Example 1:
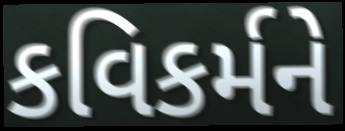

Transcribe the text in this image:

કવિકર્મને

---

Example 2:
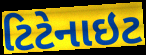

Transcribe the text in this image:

ટિટેનાઇટ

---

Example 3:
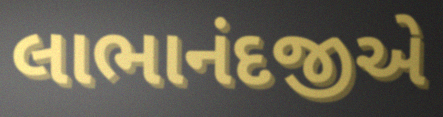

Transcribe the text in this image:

લાભાનંદજીએ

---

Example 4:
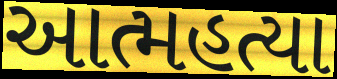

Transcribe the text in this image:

આત્મહત્યા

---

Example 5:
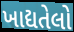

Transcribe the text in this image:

ખાદ્યતેલો